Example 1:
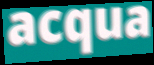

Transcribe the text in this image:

acqua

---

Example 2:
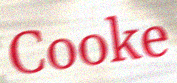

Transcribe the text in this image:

Cooke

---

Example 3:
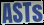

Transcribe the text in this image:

ASTs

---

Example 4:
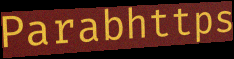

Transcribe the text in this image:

Parabhttps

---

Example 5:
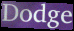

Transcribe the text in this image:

Dodge